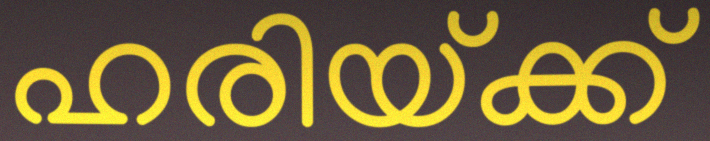
ഹരിയ്‌ക്ക്